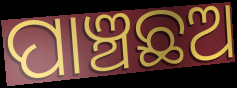
ପାଞ୍ଚଛଅ